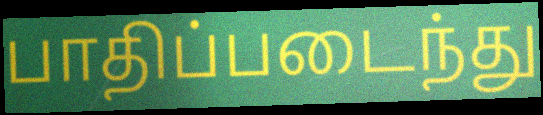
பாதிப்படைந்து